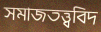
সমাজতত্ত্ববিদ